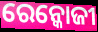
ରେନ୍କୋଜୀ